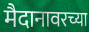
मैदानावरच्या